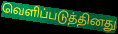
வெளிப்படுத்தினது